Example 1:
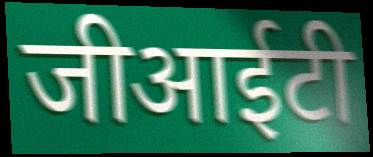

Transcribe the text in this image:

जीआईटी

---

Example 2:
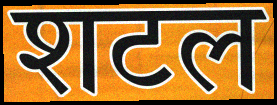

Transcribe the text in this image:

शटल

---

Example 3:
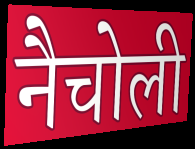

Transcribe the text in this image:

नैचोली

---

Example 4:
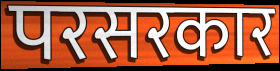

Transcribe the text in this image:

परसरकार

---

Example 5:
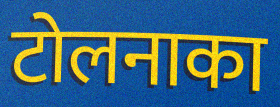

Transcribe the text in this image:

टोलनाका